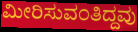
ಮೀರಿಸುವಂತಿದ್ದವು